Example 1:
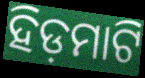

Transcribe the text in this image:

ହିଡ଼ମାଟି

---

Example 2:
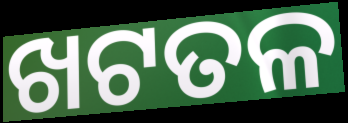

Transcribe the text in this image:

ଖଟତଳ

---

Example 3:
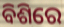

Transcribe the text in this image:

ବିଶିରେ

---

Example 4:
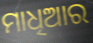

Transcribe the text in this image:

ମାଧିଆର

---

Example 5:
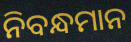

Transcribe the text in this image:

ନିବନ୍ଧମାନ